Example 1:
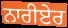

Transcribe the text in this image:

ਨਾਰੀਏਰ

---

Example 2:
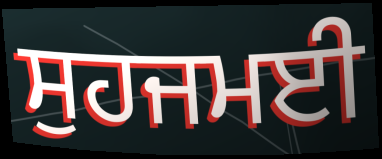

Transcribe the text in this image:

ਸੁਹਜਮਈ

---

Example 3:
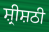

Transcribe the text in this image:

ਸ਼੍ਰੀਸ਼ਠੀ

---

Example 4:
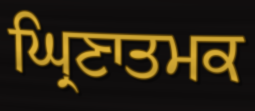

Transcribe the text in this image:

ਘ੍ਰਿਣਾਤਮਕ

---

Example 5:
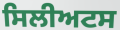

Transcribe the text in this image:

ਸਿਲੀਅਟਸ